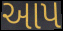
આપ